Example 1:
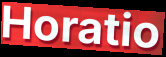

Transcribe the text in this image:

Horatio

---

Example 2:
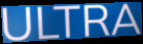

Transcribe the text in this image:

ULTRA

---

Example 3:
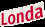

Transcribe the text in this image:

Londa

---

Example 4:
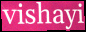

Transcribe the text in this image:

vishayi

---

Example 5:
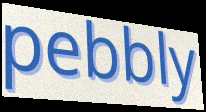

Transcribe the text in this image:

pebbly